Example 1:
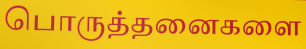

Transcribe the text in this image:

பொருத்தனைகளை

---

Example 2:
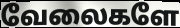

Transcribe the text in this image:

வேலைகளே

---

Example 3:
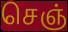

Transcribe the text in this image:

செஞ்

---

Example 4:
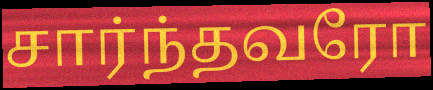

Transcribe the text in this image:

சார்ந்தவரோ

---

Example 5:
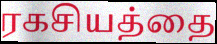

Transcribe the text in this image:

ரகசியத்தை